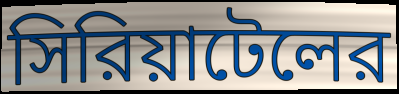
সিরিয়াটেলের